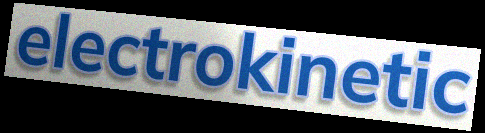
electrokinetic